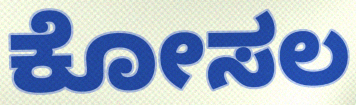
ಕೋಸಲ